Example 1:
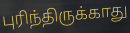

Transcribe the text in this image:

புரிந்திருக்காது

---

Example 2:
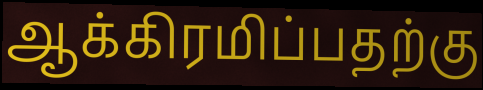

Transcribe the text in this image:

ஆக்கிரமிப்பதற்கு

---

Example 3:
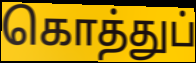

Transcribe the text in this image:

கொத்துப்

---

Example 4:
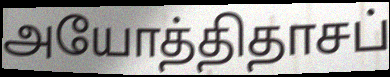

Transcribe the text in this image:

அயோத்திதாசப்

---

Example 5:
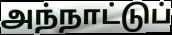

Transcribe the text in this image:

அந்நாட்டுப்